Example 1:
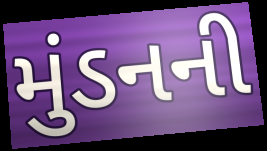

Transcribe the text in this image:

મુંડનની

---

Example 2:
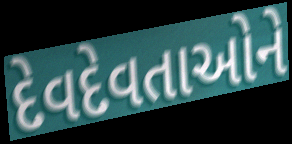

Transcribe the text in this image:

દેવદેવતાઓને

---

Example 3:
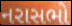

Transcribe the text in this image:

નરાસભો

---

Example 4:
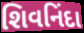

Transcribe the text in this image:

શિવનિંદા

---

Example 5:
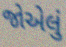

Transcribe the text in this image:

જોએલું